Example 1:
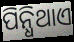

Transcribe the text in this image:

ପିନ୍ଧିଥାଏ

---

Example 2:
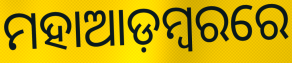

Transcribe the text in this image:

ମହାଆଡ଼ମ୍ୱରରେ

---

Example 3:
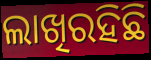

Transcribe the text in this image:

ଲାଖିରହିଛି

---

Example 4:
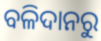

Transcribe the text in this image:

ବଳିଦାନରୁ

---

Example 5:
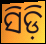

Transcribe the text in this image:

ସିଡ଼ି